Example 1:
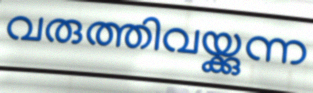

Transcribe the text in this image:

വരുത്തിവയ്ക്കുന്ന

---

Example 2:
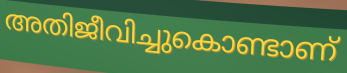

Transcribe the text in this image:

അതിജീവിച്ചുകൊണ്ടാണ്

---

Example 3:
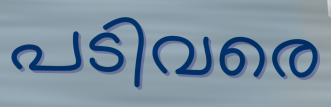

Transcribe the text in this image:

പടിവരെ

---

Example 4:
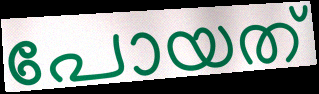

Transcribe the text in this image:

പോയത്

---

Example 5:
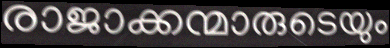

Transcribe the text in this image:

രാജാക്കന്മാരുടെയും